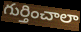
గుర్తించాలా